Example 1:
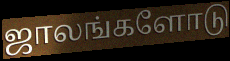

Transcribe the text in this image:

ஜாலங்களோடு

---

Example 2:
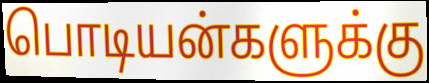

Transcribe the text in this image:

பொடியன்களுக்கு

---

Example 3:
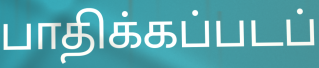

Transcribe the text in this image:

பாதிக்கப்படப்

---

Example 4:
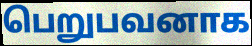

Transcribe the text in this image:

பெறுபவனாக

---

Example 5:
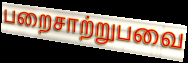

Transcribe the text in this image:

பறைசாற்றுபவை